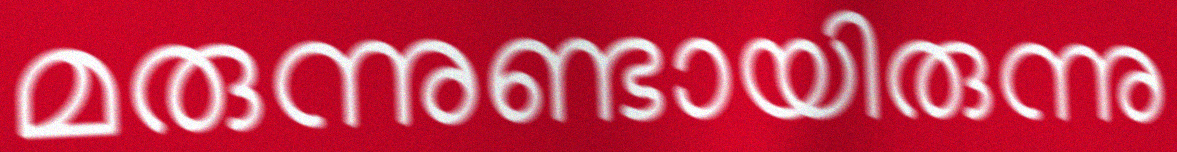
മരുന്നുണ്ടായിരുന്നു